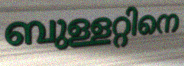
ബുള്ളറ്റിനെ